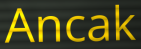
Ancak